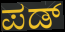
ಪಡ್